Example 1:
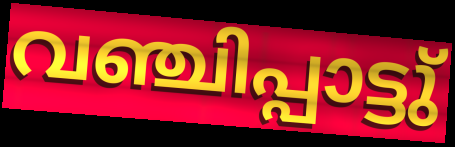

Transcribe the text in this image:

വഞ്ചിപ്പാട്ടു്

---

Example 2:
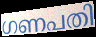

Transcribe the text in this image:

ഗണപതി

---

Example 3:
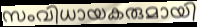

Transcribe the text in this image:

സംവിധായകരുമായി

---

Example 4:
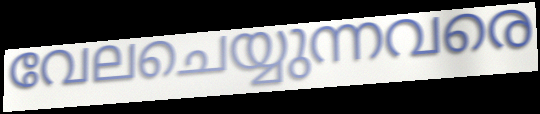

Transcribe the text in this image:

വേലചെയ്യുന്നവരെ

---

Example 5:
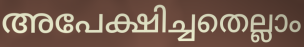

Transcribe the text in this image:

അപേക്ഷിച്ചതെല്ലാം